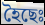
হৈছেঃ